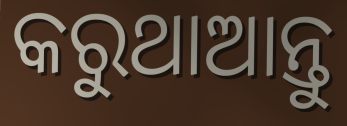
କରୁଥାଆନ୍ତୁ